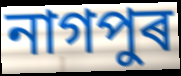
নাগপুৰ